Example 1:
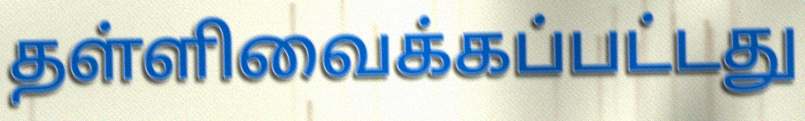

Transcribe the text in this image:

தள்ளிவைக்கப்பட்டது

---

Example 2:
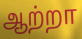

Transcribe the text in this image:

ஆற்றா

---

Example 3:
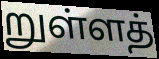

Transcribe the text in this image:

றுள்ளத்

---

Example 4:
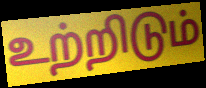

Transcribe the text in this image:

உற்றிடும்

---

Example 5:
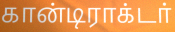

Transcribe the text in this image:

கான்டிராக்டர்